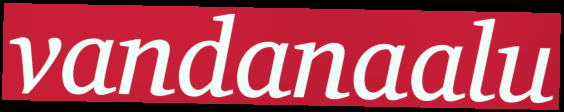
vandanaalu